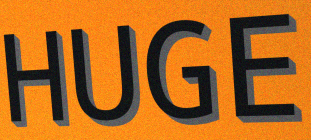
HUGE